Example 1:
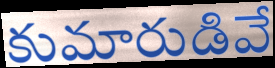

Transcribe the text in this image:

కుమారుడివే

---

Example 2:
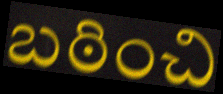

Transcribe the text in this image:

బఠించి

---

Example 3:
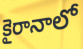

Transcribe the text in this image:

కైరానాలో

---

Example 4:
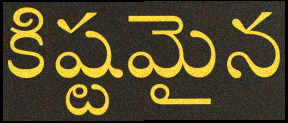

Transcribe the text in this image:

కిష్టమైన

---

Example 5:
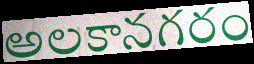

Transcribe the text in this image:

అలకానగరం